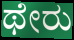
ಥೇರು